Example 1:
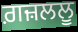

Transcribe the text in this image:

ਗ਼ਜ਼ਲਲੂ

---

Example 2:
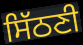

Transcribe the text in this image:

ਸਿੱਠਣੀ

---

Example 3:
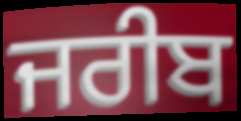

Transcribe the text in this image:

ਜਰੀਬ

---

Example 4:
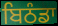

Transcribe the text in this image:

ਬਿਠੰਡਾ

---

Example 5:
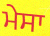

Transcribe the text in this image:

ਮੇਸਾ